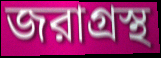
জরাগ্রস্থ